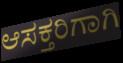
ಆಸಕ್ತರಿಗಾಗಿ